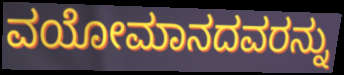
ವಯೋಮಾನದವರನ್ನು